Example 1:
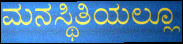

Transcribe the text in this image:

ಮನಸ್ಥಿತಿಯಲ್ಲೂ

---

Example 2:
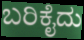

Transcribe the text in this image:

ಬರಿಕೈದು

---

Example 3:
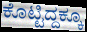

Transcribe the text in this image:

ಕೊಟ್ಟಿದ್ದಕ್ಕೂ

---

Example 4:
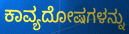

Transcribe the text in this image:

ಕಾವ್ಯದೋಷಗಳನ್ನು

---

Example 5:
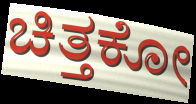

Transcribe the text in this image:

ಚಿತ್ತಕೋ